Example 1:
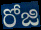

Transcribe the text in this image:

రోజి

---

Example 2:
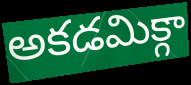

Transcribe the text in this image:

అకడమిక్గా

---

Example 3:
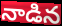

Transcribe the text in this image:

నాడిన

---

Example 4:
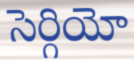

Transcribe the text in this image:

సెర్గియో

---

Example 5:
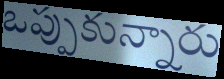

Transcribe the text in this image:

ఒప్పుకున్నారు